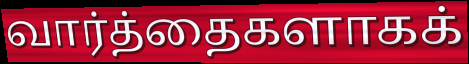
வார்த்தைகளாகக்